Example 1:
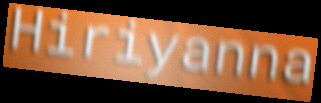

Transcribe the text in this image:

Hiriyanna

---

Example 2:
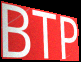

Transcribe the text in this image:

BTP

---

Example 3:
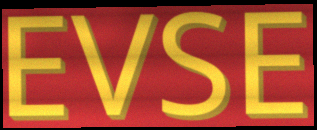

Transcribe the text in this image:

EVSE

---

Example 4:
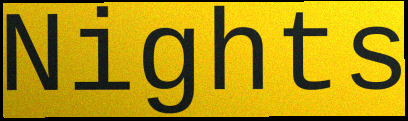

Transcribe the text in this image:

Nights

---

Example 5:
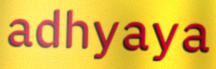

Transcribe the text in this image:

adhyaya